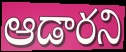
ఆడారని